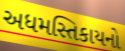
અધમસ્તિકાયનો